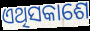
ଏଥିସକାଶେ